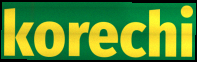
korechi